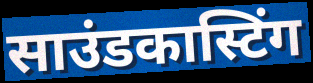
साउंडकास्टिंग